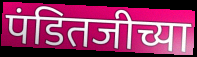
पंडितजीच्या